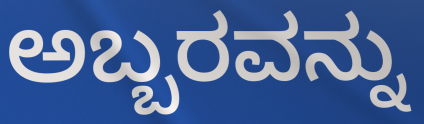
ಅಬ್ಬರವನ್ನು